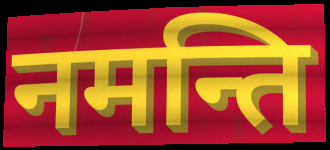
नमन्ति